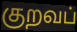
குறவப்